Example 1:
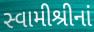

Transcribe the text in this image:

સ્વામીશ્રીનાં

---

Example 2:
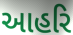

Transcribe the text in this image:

આહરિ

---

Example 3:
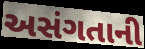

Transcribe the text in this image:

અસંગતાની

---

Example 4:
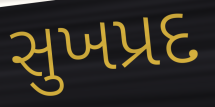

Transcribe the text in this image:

સુખપ્રદ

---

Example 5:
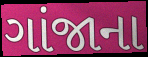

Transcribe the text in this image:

ગાંજાના